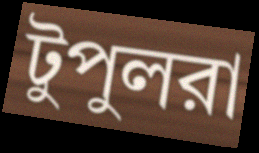
টুপুলরা